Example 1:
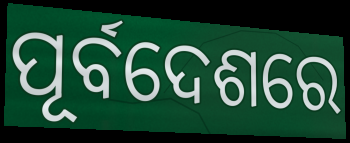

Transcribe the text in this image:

ପୂର୍ବଦେଶରେ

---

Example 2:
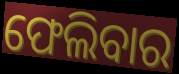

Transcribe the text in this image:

ଫେଲିବାର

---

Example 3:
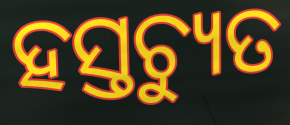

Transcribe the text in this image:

ହସ୍ତଚ୍ୟୁତ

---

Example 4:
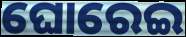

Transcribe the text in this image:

ଘୋରେଇ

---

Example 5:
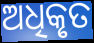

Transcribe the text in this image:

ଅଧିକୃତ